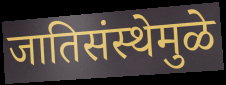
जातिसंस्थेमुळे